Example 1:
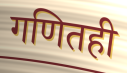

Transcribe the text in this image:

गणितही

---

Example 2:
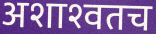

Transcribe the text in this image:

अशाश्वतच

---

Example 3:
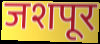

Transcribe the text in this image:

जशपूर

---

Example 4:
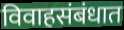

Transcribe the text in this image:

विवाहसंबंधात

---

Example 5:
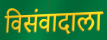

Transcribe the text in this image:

विसंवादाला